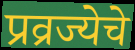
प्रव्रज्येचे